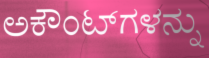
ಅಕೌಂಟ್‌ಗಳನ್ನು